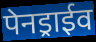
पेनड्राईव